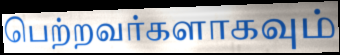
பெற்றவர்களாகவும்